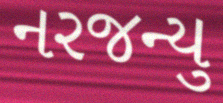
નરજન્યુ